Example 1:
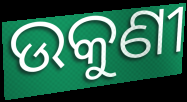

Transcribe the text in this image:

ଉକୁଣୀ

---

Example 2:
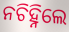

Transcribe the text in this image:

ନଚିହ୍ନିଲେ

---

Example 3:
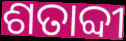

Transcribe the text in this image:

ଶତାବ୍ଦୀ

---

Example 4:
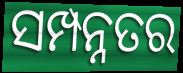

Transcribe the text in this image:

ସମ୍ପନ୍ନତର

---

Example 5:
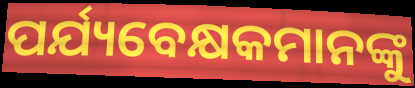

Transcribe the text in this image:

ପର୍ଯ୍ୟବେକ୍ଷକମାନଙ୍କୁ